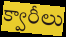
క్వారీలు